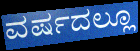
ವರ್ಷದಲ್ಲೂ